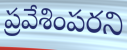
ప్రవేశింపరని